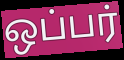
ஒப்பர்